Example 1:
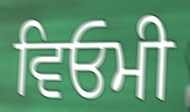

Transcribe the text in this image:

ਵਿਓਮੀ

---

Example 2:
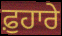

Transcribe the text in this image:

ਫ਼ੁਹਾਰੇ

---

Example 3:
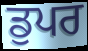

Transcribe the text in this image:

ਡੁਪਰ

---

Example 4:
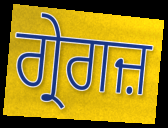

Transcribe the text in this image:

ਗ੍ਰੇਗਜ਼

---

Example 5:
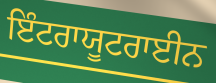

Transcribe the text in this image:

ਇੰਟਰਾਯੂਟਰਾਈਨ